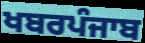
ਖਬਰਪੰਜਾਬ